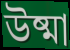
উষ্মা